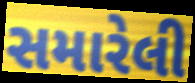
સમારેલી